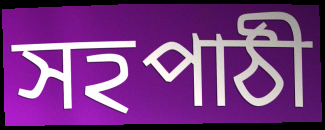
সহপাঠী